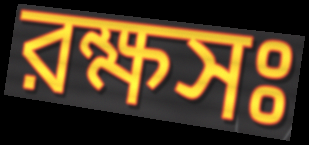
রক্ষসঃ